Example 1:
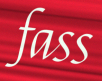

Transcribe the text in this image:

fass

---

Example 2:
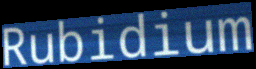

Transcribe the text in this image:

Rubidium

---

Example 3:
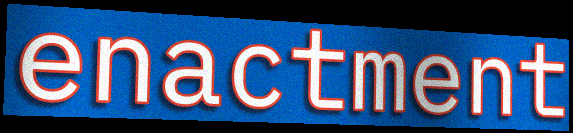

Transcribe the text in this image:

enactment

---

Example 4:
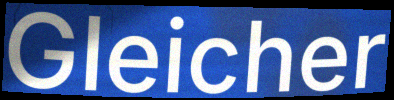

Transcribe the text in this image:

Gleicher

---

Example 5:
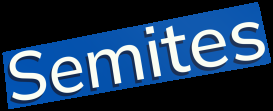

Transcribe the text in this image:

Semites